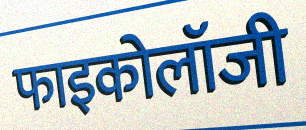
फाइकोलॉजी